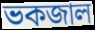
ভকজাল